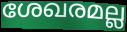
ശേഖരമല്ല